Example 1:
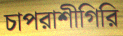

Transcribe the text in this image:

চাপরাশীগিরি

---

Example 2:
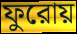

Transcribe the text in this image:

ফুরোয়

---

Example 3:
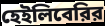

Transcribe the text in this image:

হেইলিবেরির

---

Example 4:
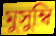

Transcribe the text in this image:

মুসুম্বি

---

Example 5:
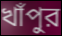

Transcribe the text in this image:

খাঁপুর